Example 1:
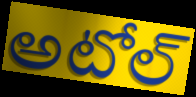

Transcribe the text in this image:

అటోల్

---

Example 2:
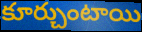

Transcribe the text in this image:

కూర్చుంటాయి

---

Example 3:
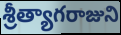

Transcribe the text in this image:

శ్రీత్యాగరాజుని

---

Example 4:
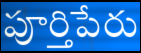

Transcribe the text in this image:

పూర్తిపేరు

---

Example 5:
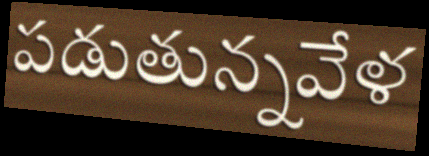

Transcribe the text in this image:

పడుతున్నవేళ